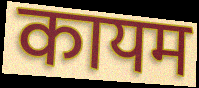
कायम